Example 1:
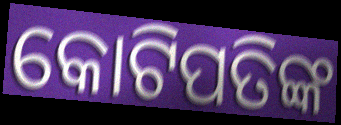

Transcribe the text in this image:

କୋଟିପତିଙ୍କ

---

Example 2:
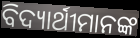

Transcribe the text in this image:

ବିଦ୍ୟାର୍ଥୀମାନଙ୍କ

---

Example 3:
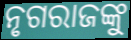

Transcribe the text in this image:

ନୃଗରାଜଙ୍କୁ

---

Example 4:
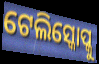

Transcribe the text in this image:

ଟେଲିସ୍କୋପ୍କୁ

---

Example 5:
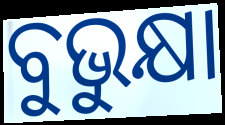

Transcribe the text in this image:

ବୁଭୁକ୍ଷା